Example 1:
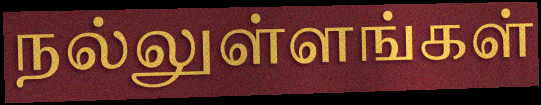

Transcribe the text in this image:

நல்லுள்ளங்கள்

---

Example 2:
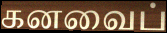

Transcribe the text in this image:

கனவைப்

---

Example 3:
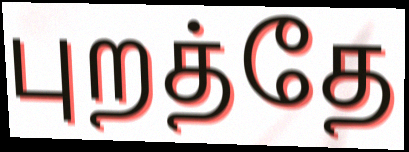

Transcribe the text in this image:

புறத்தே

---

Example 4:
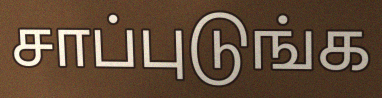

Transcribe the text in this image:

சாப்புடுங்க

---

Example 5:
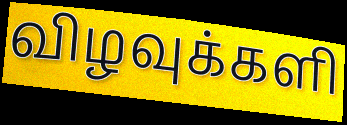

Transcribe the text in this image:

விழவுக்களி